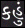
કહું